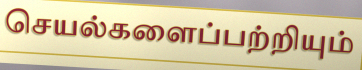
செயல்களைப்பற்றியும்